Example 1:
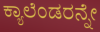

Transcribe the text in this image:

ಕ್ಯಾಲೆಂಡರನ್ನೇ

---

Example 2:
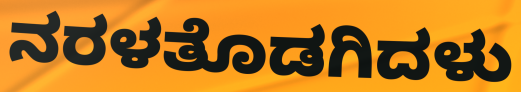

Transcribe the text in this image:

ನರಳತೊಡಗಿದಳು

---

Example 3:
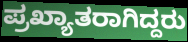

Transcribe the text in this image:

ಪ್ರಖ್ಯಾತರಾಗಿದ್ದರು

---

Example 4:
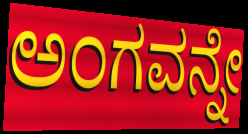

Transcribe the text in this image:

ಅಂಗವನ್ನೇ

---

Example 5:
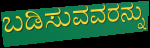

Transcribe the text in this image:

ಬಡಿಸುವವರನ್ನು